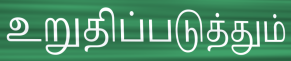
உறுதிப்படுத்தும்